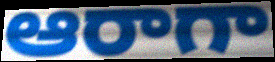
ఆరాగా